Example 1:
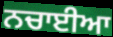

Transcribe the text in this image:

ਨਚਾਈਆ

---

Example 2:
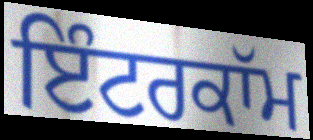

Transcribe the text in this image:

ਇੰਟਰਕਾੱਮ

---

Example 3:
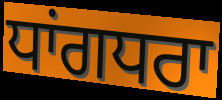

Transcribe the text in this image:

ਧਾਂਗਧਰਾ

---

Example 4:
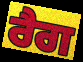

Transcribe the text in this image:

ਰੈਗ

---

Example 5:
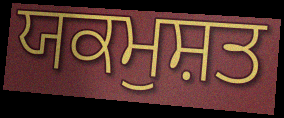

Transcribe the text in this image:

ਯਕਮੁਸ਼ਤ